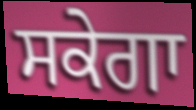
ਸਕੇਗਾ